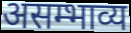
असम्भाव्य